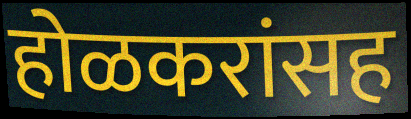
होळकरांसह